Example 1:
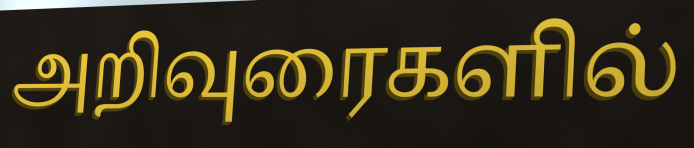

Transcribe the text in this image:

அறிவுரைகளில்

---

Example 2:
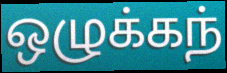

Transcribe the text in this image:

ஒழுக்கந்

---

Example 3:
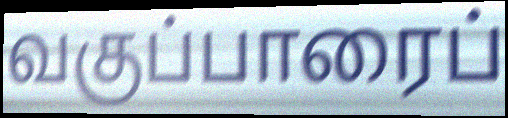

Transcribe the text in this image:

வகுப்பாரைப்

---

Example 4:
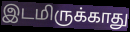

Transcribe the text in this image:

இடமிருக்காது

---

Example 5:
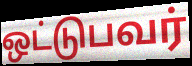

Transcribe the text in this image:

ஒட்டுபவர்